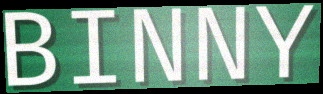
BINNY